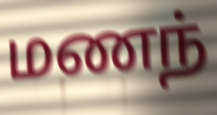
மணந்